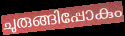
ചുരുങ്ങിപ്പോകും